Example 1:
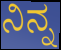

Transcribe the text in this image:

ನಿನ್ನ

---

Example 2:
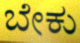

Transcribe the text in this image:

ಬೇಕು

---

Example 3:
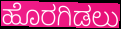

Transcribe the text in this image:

ಹೊರಗಿಡಲು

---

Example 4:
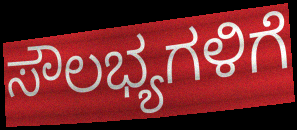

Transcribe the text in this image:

ಸೌಲಭ್ಯಗಳಿಗೆ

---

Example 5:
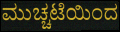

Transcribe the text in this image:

ಮುಚ್ಚಟೆಯಿಂದ